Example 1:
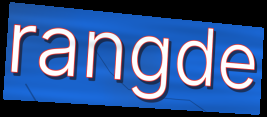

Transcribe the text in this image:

rangde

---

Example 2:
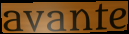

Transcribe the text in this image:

avante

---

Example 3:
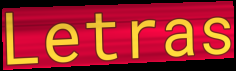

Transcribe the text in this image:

Letras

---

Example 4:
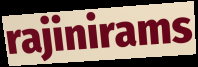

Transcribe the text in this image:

rajinirams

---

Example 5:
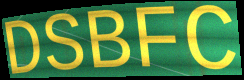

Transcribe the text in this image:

DSBFC